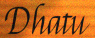
Dhatu